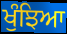
ਖੁੰਝਿਆ